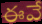
ఈవే